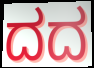
ದದ